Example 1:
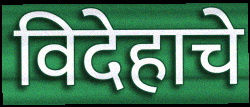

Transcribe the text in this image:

विदेहाचे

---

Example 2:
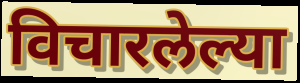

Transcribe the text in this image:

विचारलेल्या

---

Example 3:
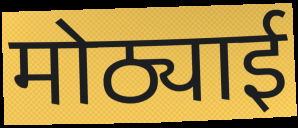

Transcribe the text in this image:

मोठ्याई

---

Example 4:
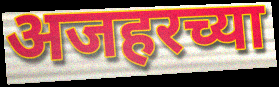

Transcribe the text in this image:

अजहरच्या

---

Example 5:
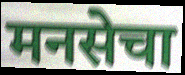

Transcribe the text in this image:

मनसेचा